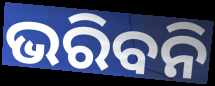
ଭରିବନି